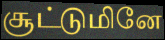
சூட்டுமினே